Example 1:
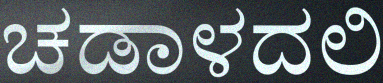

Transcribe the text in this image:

ಚಡಾಳದಲಿ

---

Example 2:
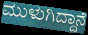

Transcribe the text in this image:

ಮುಳುಗಿದ್ದಾನೆ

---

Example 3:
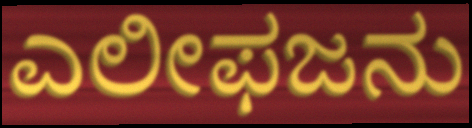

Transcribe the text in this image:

ಎಲೀಫಜನು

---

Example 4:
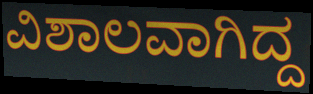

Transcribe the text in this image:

ವಿಶಾಲವಾಗಿದ್ದ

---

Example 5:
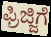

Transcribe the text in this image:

ಫ್ರಿಜ್ಜಿಗೆ